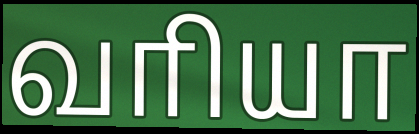
வரியா